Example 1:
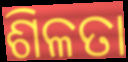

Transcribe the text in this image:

ଶିଳତା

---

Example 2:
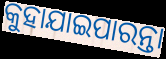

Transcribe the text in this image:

କୁହାଯାଇପାରନ୍ତା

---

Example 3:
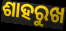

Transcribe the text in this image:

ଶାହରୁଖ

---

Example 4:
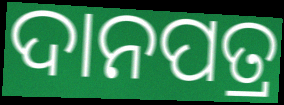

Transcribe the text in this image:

ଦାନପତ୍ର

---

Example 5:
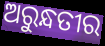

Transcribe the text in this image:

ଅରୁନ୍ଧତୀର